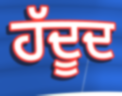
ਹੱਦੂਦ